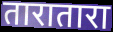
तारातारा